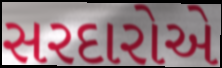
સરદારોએ